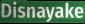
Disnayake